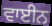
ਵਾਈਨ